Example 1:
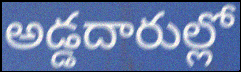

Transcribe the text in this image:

అడ్డదారుల్లో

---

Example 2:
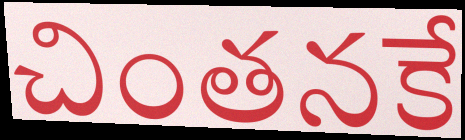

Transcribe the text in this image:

చింతనకే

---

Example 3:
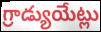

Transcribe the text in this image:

గ్రాడ్యుయేట్లు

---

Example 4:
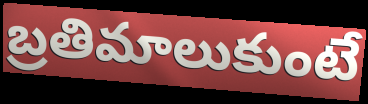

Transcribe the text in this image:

బ్రతిమాలుకుంటే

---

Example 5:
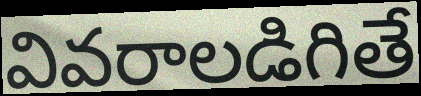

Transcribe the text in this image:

వివరాలడిగితే